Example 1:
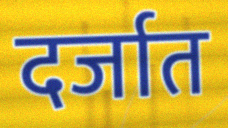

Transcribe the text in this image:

दर्जात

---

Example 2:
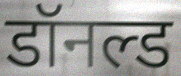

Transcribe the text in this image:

डॉनल्ड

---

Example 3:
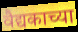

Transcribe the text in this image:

वैद्यकाच्या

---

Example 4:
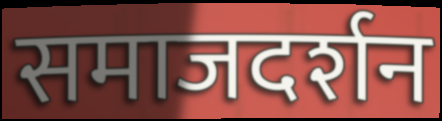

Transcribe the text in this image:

समाजदर्शन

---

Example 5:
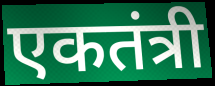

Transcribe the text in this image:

एकतंत्री